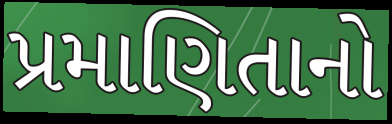
પ્રમાણિતાનો